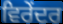
ਵਿਰੇਂਦਰ